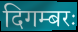
दिगम्बरः